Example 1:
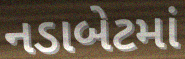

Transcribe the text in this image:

નડાબેટમાં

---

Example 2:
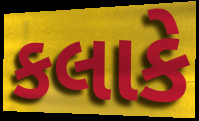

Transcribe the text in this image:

કલાકે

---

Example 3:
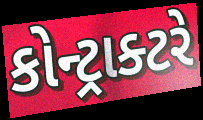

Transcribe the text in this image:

કોન્ટ્રાક્ટરે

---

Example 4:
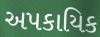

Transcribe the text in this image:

અપકાયિક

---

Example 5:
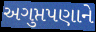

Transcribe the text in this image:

અગુપ્તપણાને